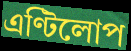
এণ্টিলোপ